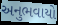
અનુભવાયો